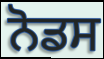
ਨੋਡਸ